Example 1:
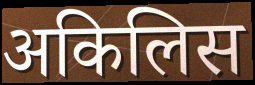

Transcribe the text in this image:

अकिलिस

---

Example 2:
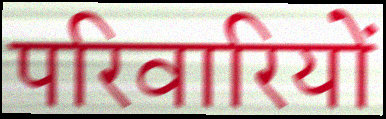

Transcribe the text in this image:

परिवारियों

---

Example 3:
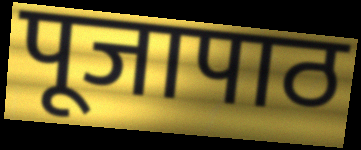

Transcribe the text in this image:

पूजापाठ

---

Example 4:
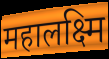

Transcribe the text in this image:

महालक्ष्मि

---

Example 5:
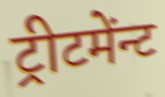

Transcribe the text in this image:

ट्रीटमेंन्ट